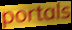
portals